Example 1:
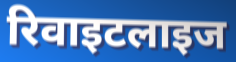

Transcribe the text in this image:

रिवाइटलाइज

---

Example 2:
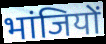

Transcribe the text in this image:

भांजियों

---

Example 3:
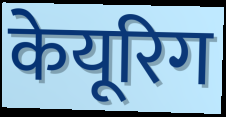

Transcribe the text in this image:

केयूरिग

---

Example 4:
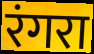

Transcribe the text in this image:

रंगरा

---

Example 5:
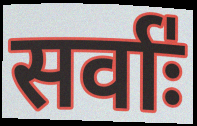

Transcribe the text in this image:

सर्वाः॑